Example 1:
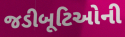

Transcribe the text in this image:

જડીબૂટિઓની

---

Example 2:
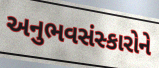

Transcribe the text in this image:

અનુભવસંસ્કારોને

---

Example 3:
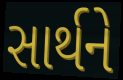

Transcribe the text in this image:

સાર્થને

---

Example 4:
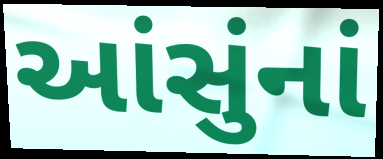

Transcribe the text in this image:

આંસુંનાં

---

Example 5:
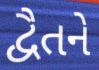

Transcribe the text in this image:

દ્વૈતને